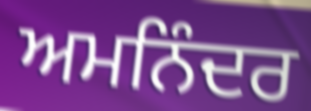
ਅਮਨਿੰਦਰ